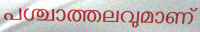
പശ്ചാത്തലവുമാണ്